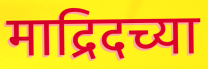
माद्रिदच्या